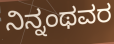
ನಿನ್ನಂಥವರ